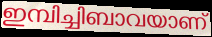
ഇമ്പിച്ചിബാവയാണ്